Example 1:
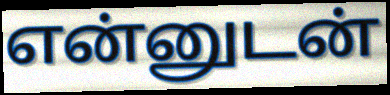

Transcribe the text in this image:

என்னுடன்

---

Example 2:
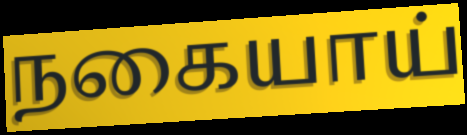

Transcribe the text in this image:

நகையாய்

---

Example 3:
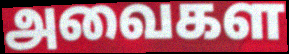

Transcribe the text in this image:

அவைகள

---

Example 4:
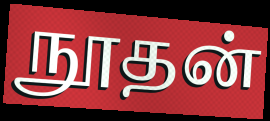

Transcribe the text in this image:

நூதன்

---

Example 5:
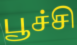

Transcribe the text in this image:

பூச்சி